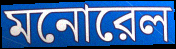
মনোরেল